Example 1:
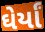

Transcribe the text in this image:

ઘેર્યાં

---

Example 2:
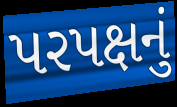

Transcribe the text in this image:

પરપક્ષનું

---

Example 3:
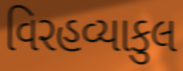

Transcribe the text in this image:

વિરહવ્યાકુલ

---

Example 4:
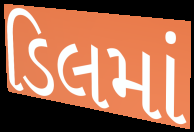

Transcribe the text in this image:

ડિલમાં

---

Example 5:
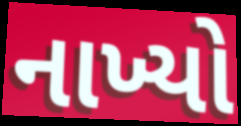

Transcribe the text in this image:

નાખ્યો